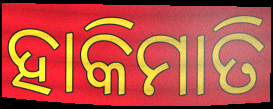
ହାକିମାତି